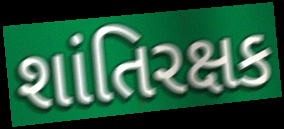
શાંતિરક્ષક